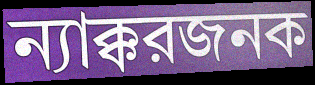
ন্যাক্করজনক